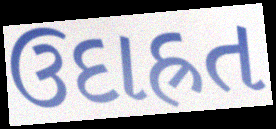
ઉદાહ્રત